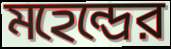
মহেন্দ্রের